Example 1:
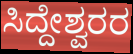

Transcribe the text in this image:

ಸಿದ್ದೇಶ್ವರರ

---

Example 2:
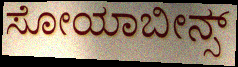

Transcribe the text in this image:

ಸೋಯಾಬೀನ್ಸ್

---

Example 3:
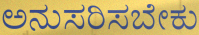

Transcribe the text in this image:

ಅನುಸರಿಸಬೇಕು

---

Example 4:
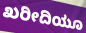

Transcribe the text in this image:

ಖರೀದಿಯೂ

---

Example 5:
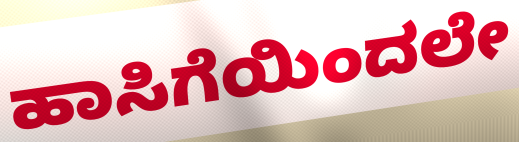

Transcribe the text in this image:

ಹಾಸಿಗೆಯಿಂದಲೇ